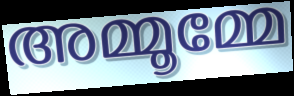
അമ്മൂമ്മേ